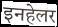
इनहेलर